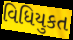
વિધિયુકત